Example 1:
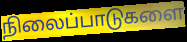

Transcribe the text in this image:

நிலைப்பாடுகளை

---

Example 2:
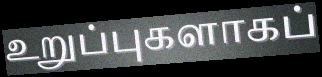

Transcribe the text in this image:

உறுப்புகளாகப்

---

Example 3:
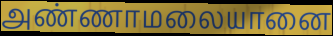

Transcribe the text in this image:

அண்ணாமலையானை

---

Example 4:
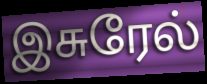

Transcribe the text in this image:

இசுரேல்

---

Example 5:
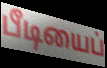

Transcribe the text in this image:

பீடியைப்